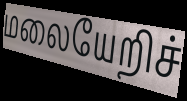
மலையேறிச்